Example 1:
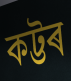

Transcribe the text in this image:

কট্টৰ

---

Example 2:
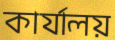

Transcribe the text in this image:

কাৰ্যালয়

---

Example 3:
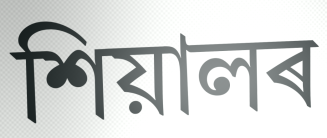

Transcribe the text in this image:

শিয়ালৰ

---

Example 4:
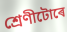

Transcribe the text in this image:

শ্ৰেণীটোৰে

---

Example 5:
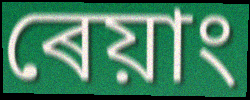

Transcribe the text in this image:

ৰেয়াং